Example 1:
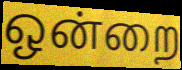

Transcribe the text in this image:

ஒன்றை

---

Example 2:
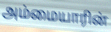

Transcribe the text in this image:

அம்மையாரின்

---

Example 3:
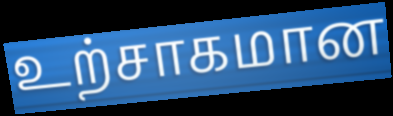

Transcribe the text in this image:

உற்சாகமான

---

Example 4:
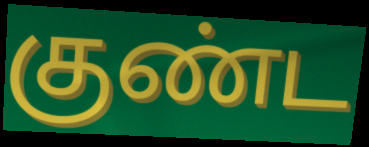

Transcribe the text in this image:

குண்ட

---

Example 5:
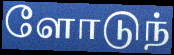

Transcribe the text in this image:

ளோடுந்